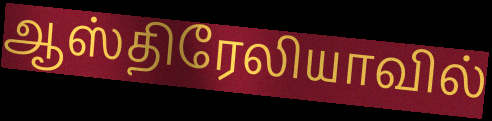
ஆஸ்திரேலியாவில்